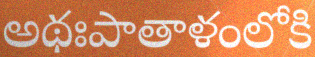
అథఃపాతాళంలోకి